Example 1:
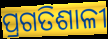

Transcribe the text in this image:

ପ୍ରଗତିଶାଳୀ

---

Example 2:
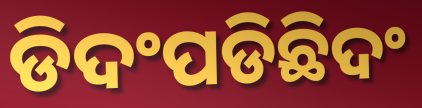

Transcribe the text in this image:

ଡିଦଂପଡିଛିଦଂ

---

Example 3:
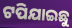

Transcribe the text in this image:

ଟପିଯାଇଛୁ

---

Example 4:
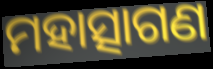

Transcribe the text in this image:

ମହାତ୍ସାଗଣ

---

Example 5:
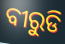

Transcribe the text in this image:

ବୀରୁଡି